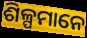
ଶିଳ୍ପମାନେ